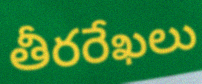
తీరరేఖలు